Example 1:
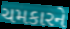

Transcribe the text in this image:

ચમકારને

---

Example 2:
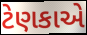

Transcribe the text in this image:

ટેણકાએ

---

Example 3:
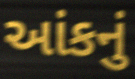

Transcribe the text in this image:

આંકનું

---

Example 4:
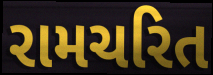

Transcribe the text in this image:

રામચરિત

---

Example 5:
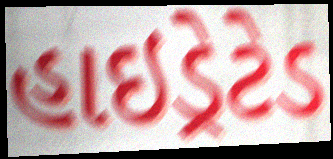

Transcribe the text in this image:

હાઇડ્રેટેડ